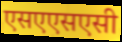
एसएएसएसी